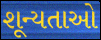
શૂન્યતાઓ